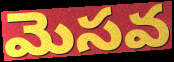
మెసవ